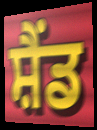
ਸ਼ੈਂਡ